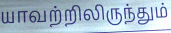
யாவற்றிலிருந்தும்